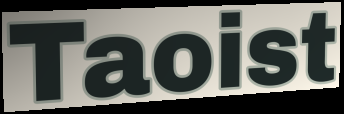
Taoist